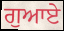
ਗੁਆਏ